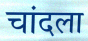
चांदला